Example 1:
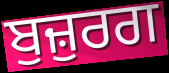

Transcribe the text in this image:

ਬੁਜ਼ੁਰਗ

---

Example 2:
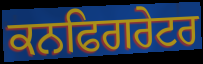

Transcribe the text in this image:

ਕਨਫਿਗਰੇਟਰ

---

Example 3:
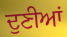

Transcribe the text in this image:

ਦੁਣੀਆਂ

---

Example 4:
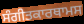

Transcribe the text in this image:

ਸੰਗੀਤਕਾਰਥਾਮਸ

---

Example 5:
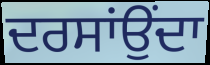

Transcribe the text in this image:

ਦਰਸਾਂਉਂਦਾ